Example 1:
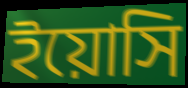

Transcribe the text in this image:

ইয়োসি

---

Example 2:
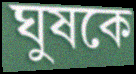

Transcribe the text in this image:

ঘুষকে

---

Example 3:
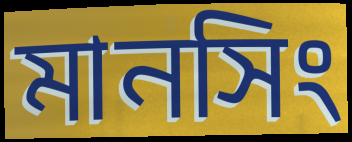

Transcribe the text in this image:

মানসিং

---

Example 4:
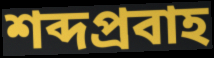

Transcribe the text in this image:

শব্দপ্রবাহ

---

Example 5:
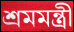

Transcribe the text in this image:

শ্রমমন্ত্রী